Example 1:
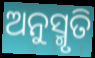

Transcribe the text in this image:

ଅନୁସ୍ମୃତି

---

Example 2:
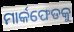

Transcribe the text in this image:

ମାର୍କଫେଡକୁ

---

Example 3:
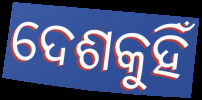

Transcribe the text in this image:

ଦେଶକୁହିଁ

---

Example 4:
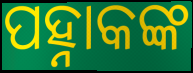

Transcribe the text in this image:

ପହ୍ନାକଙ୍କ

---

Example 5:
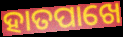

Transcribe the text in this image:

ହାତପାଖେ